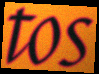
tos